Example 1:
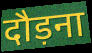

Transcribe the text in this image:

दौड़ना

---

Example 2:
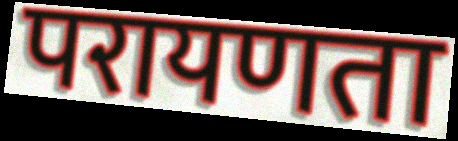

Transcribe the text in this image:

परायणता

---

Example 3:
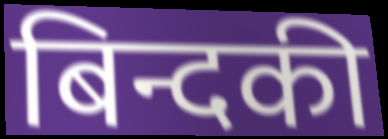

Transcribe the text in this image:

बिन्दकी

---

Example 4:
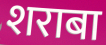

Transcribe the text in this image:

शराबा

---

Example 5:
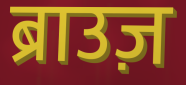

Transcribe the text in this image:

ब्राउज़